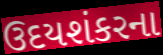
ઉદયશંકરના